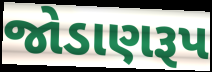
જોડાણરૂપ